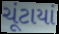
ચૂંટાયાં